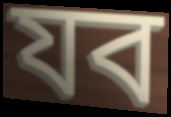
যব